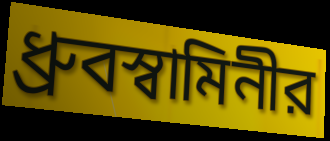
ধ্রুবস্বামিনীর